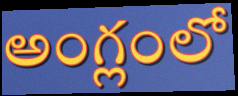
అంగ్లంలో